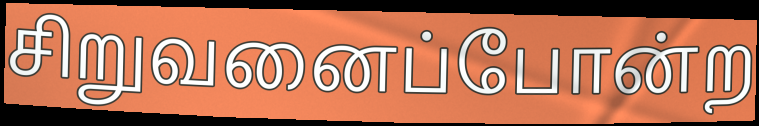
சிறுவனைப்போன்ற